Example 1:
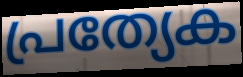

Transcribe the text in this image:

പ്രത്യേക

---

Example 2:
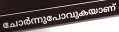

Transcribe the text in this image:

ചോർന്നുപോവുകയാണ്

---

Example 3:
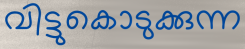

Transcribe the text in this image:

വിട്ടുകൊടുക്കുന്ന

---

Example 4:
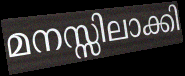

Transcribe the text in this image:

മനസ്സിലാക്കി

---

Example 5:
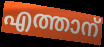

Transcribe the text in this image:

എത്താന്